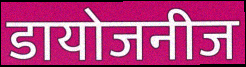
डायोजनीज